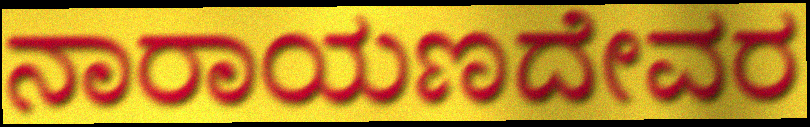
ನಾರಾಯಣದೇವರ